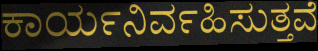
ಕಾರ್ಯನಿರ್ವಹಿಸುತ್ತವೆ